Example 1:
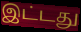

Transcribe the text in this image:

இட்டது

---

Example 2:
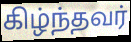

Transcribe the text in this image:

கிழ்ந்தவர்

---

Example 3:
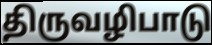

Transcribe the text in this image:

திருவழிபாடு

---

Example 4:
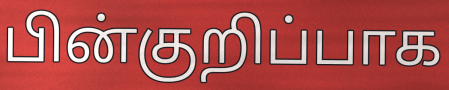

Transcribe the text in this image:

பின்குறிப்பாக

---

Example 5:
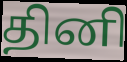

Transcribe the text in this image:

தினி